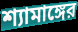
শ্যামাঙ্গের